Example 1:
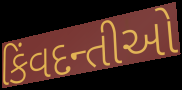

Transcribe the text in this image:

કિંવદન્તીઓ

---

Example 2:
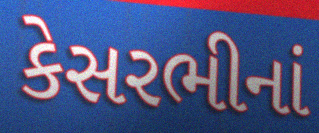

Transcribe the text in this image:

કેસરભીનાં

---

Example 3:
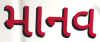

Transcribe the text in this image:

માનવ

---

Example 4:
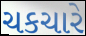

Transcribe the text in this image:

ચકચારે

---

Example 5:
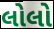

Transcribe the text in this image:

લોલો